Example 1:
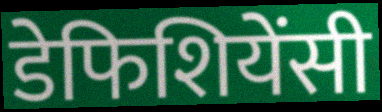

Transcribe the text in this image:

डेफिशियेंसी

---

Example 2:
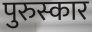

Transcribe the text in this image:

पुरुस्‍कार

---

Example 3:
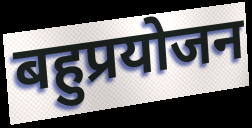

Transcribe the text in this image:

बहुप्रयोजन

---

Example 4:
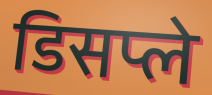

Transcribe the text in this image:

डिसप्ले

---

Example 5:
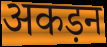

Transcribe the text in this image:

अकड़न